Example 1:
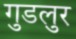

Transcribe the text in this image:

गुडलुर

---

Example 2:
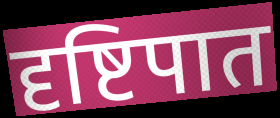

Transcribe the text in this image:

दृष्टिपात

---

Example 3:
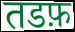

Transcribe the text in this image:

तडफ़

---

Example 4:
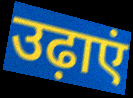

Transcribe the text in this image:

उढ़ाएं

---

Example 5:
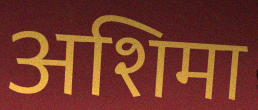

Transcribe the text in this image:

अशिमा